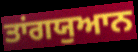
ਤਾਂਗਯੁਆਨ